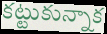
కట్టుకున్నాక